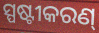
ସ୍ପଷ୍ଟୀକରଣ୍